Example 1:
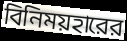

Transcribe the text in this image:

বিনিময়হারের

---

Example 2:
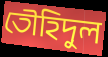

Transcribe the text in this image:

তৌহিদুল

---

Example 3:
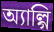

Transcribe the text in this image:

অ্যাল্গি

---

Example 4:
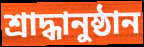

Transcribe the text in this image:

শ্রাদ্ধানুষ্ঠান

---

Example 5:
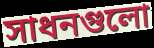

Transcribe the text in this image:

সাধনগুলো